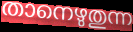
താനെഴുതുന്ന